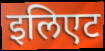
इलिएट